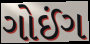
ગોઈંગ